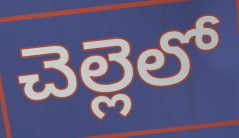
చెల్లెలో